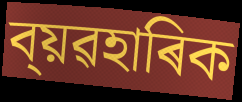
ব্য়ৱহাৰিক